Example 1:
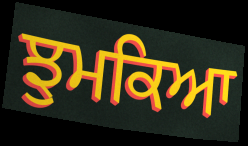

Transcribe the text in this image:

ਝੁਮਕਿਆ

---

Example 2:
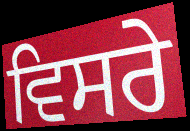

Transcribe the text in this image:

ਵਿਸਰੇ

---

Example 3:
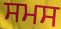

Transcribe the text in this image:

ਸਮਸ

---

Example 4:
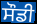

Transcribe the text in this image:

ਸੌਡੀ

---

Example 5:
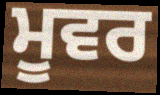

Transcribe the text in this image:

ਮੂਵਰ